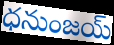
ధనుంజయ్